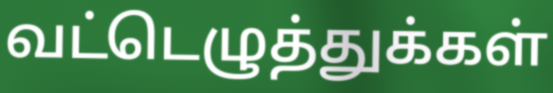
வட்டெழுத்துக்கள்